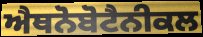
ਐਥਨੋਬੋਟੈਨੀਕਲ